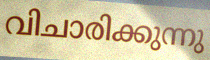
വിചാരിക്കുന്നു